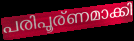
പരിപൂര്ണമാക്കി